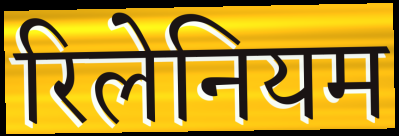
रिलेनियम